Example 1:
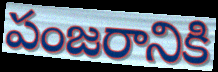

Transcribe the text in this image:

పంజరానికి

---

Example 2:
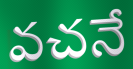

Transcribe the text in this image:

వచనే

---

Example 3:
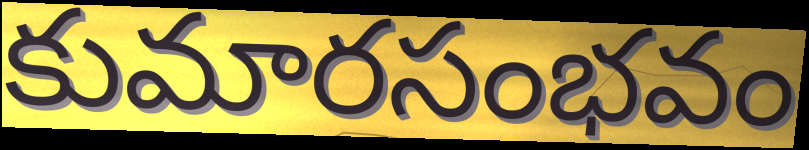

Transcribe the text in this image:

కుమారసంభవం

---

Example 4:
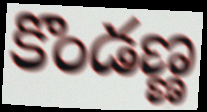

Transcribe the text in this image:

కొండణ్ణ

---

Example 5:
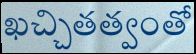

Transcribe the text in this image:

ఖచ్చితత్వంతో